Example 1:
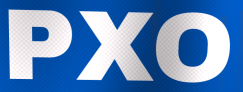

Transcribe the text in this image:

PXO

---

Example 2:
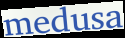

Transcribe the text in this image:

medusa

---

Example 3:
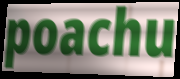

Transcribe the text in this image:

poachu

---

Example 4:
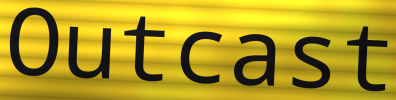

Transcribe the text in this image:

Outcast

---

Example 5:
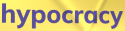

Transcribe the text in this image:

hypocracy